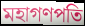
মহাগণপতি